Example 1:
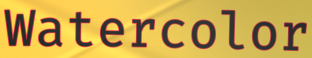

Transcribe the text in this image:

Watercolor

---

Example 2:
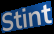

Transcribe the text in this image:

Stint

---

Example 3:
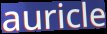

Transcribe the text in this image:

auricle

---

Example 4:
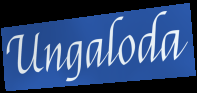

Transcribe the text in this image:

Ungaloda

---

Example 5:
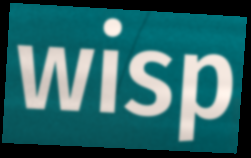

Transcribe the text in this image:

wisp